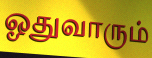
ஓதுவாரும்